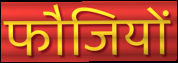
फौजियों